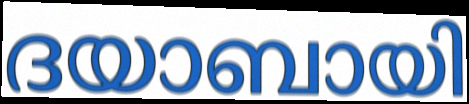
ദയാബായി